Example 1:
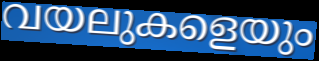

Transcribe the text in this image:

വയലുകളെയും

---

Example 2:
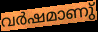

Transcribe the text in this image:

വർഷമാണു്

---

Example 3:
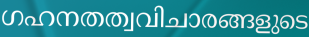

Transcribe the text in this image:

ഗഹനതത്വവിചാരങ്ങളുടെ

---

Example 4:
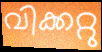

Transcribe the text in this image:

വിക്കറ്റു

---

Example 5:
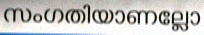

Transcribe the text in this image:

സംഗതിയാണല്ലോ